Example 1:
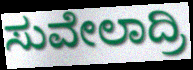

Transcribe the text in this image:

ಸುವೇಲಾದ್ರಿ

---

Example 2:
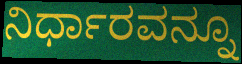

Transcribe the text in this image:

ನಿರ್ಧಾರವನ್ನೂ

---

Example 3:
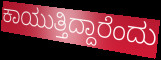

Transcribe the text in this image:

ಕಾಯುತ್ತಿದ್ದಾರೆಂದು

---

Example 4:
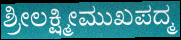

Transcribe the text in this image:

ಶ್ರೀಲಕ್ಷ್ಮೀಮುಖಪದ್ಮ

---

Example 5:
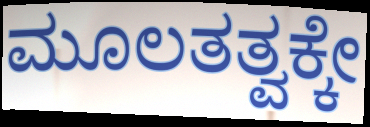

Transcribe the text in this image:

ಮೂಲತತ್ವಕ್ಕೇ